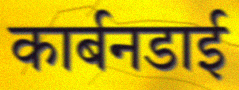
कार्बनडाई